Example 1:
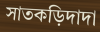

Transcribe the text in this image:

সাতকড়িদাদা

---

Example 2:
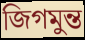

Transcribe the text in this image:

জিগমুন্ত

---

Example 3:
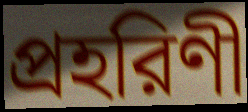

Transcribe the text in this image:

প্রহরিণী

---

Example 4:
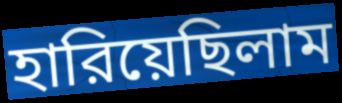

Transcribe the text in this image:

হারিয়েছিলাম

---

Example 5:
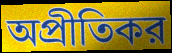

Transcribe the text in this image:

অপ্রীতিকর